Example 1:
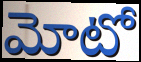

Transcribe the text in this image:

మోటో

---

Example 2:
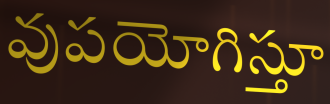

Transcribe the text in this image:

వుపయోగిస్తూ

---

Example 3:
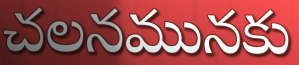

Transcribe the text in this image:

చలనమునకు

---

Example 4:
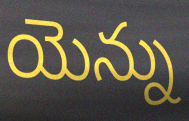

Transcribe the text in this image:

యెన్ను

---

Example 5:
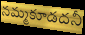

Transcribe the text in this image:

నమ్మకూడదనీ